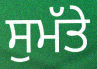
ਸੁਮੱਤੇ